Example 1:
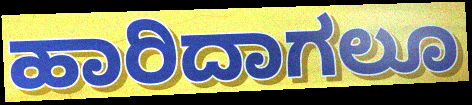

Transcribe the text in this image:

ಹಾರಿದಾಗಲೂ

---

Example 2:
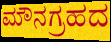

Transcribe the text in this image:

ಮೌನಗ್ರಹದ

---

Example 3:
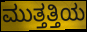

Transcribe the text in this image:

ಮುತ್ತತ್ತಿಯ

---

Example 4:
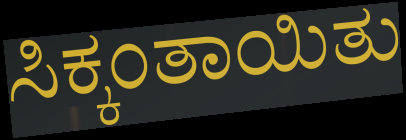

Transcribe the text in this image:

ಸಿಕ್ಕಂತಾಯಿತು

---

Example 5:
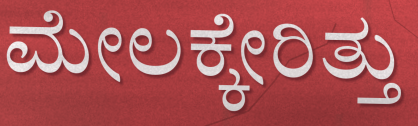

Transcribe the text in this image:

ಮೇಲಕ್ಕೇರಿತ್ತು